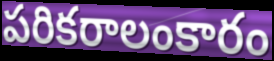
పరికరాలంకారం